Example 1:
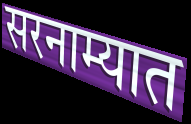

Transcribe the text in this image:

सरनाम्यात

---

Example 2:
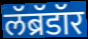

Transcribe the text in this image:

लॅब्रॅडॉर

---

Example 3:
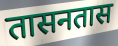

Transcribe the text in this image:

तासनतास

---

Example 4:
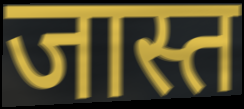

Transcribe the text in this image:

जास्त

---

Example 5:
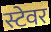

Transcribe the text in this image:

स्टेवर